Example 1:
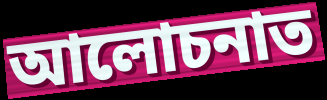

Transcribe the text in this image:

আলোচনাত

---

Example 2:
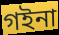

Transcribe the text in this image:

গইনা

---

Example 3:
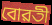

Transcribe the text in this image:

বোৱতী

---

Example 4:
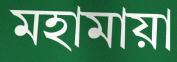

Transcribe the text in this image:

মহামায়া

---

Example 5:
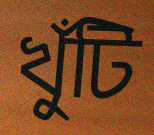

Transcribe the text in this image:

খুঁটি